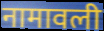
नामावली